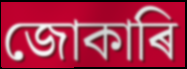
জোকাৰি